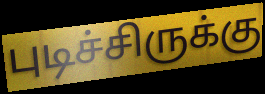
புடிச்சிருக்கு